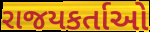
રાજયકર્તાઓ